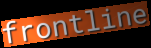
frontline